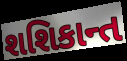
શશિકાન્ત